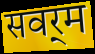
सवर्म